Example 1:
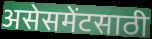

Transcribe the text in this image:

असेसमेंटसाठी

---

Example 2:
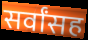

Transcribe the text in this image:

सर्वांसह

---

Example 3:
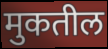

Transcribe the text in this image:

मुकतील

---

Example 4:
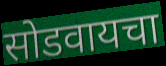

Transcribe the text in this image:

सोडवायचा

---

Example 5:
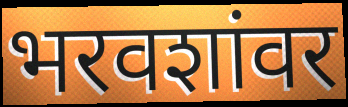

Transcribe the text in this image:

भरवशांवर